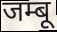
जम्बू